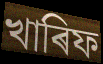
খাৰিফ